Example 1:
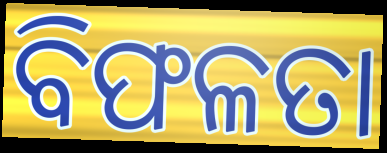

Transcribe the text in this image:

ବିଫଳତା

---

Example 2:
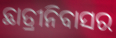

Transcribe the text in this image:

ଛାତ୍ରୀନିବାସର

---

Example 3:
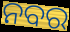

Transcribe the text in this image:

ନବର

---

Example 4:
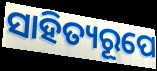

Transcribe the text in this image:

ସାହିତ୍ୟରୂପେ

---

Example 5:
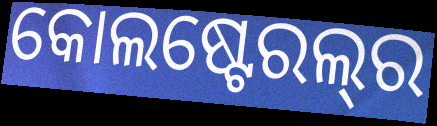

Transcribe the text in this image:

କୋଲଷ୍ଟେରଲ୍‌ର